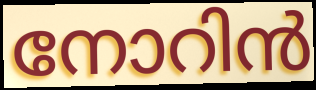
നോറിൻ